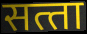
सत्‍ता